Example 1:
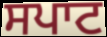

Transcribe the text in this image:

ਸਪਾਟ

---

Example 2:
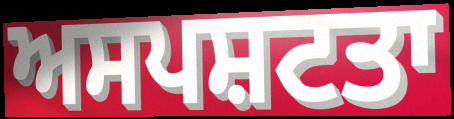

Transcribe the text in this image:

ਅਸਪਸ਼ਟਤਾ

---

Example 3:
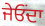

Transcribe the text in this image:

ਜੇਓੰਦਾ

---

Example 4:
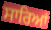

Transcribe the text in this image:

ਸਾਰਿਆਂ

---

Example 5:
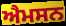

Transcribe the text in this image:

ਐਮਸਨ